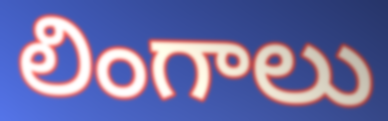
లింగాలు